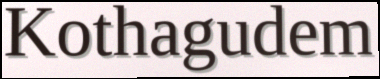
Kothagudem